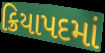
ક્રિયાપદમાં